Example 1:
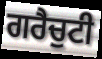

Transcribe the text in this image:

ਗਰੈਚੁਟੀ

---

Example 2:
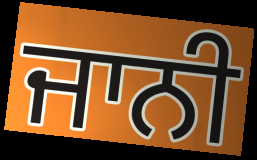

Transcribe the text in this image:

ਜਾਨੀ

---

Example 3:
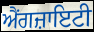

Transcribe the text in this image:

ਐਂਗਜ਼ਾਇਟੀ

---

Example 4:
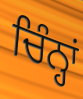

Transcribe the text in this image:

ਚਿੰਨ੍ਹਾਂ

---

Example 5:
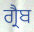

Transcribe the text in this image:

ਗ੍ਰੈਬ